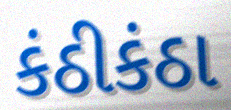
કંઠીકંઠા